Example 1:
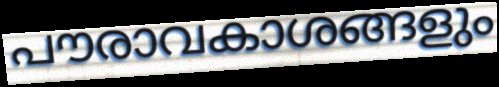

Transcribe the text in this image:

പൗരാവകാശങ്ങളും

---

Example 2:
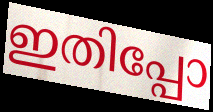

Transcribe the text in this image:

ഇതിപ്പോ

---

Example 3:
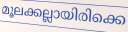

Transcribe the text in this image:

മൂലക്കല്ലായിരിക്കെ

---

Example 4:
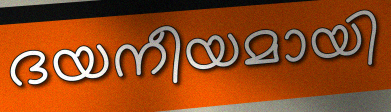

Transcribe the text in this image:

ദയനീയമായി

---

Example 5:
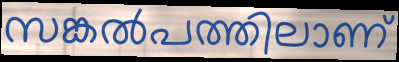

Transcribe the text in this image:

സങ്കൽപത്തിലാണ്